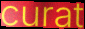
curat